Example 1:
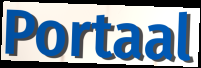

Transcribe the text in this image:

Portaal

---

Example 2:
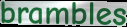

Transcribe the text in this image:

brambles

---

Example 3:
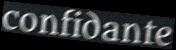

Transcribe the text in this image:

confidante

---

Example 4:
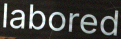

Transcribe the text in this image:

labored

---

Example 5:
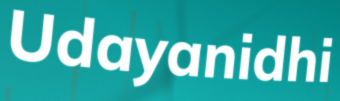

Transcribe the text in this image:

Udayanidhi